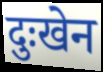
दुःखेन